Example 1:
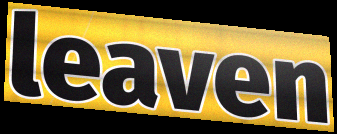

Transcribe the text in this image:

leaven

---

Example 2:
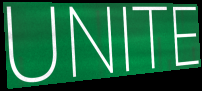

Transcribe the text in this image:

UNITE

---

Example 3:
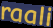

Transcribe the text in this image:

raali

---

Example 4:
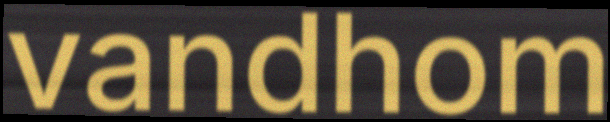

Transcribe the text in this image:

vandhom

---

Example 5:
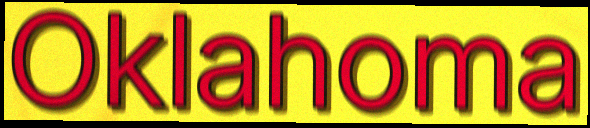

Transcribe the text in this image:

Oklahoma